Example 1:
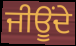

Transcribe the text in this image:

ਜੀਊਂਦੇ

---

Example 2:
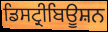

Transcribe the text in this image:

ਡਿਸਟ੍ਰੀਬਿਊਸ਼ਨ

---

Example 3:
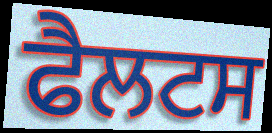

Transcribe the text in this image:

ਫੈਲਟਸ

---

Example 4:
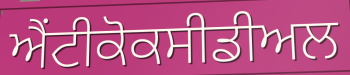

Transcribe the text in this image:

ਐਂਟੀਕੋਕਸੀਡੀਅਲ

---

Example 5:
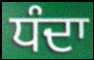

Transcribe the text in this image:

ਧੰਦਾ